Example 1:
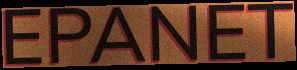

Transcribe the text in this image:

EPANET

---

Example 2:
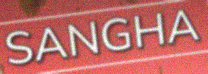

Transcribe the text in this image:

SANGHA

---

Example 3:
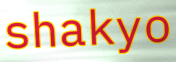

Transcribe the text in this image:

shakyo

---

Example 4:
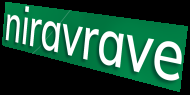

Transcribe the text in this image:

niravrave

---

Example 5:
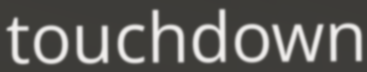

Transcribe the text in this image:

touchdown